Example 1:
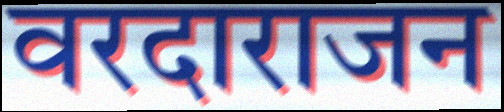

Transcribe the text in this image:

वरदाराजन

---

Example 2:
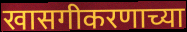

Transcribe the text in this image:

खासगीकरणाच्या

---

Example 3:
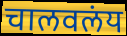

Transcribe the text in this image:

चालवलंय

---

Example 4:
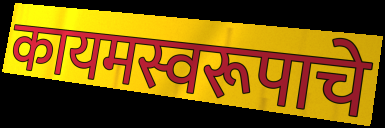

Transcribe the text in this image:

कायमस्वरूपाचे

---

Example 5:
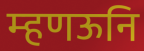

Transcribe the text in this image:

म्हणऊनि